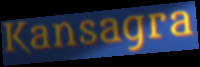
Kansagra